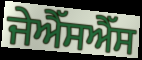
ਜੇਐੱਸਐੱਸ